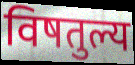
विषतुल्य